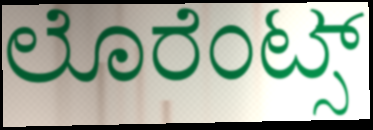
ಲೊರೆಂಟ್ಸ್